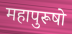
महापुरूषो